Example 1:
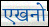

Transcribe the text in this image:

एखनो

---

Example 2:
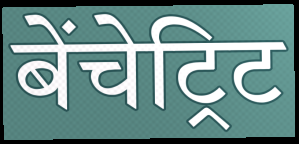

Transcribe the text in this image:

बेंचेट्रिट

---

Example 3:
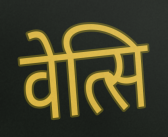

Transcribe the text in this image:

वेत्सि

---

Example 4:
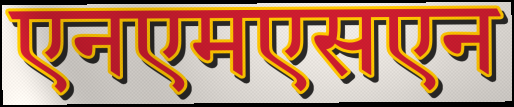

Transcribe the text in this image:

एनएमएसएन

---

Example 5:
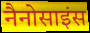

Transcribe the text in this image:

नैनोसाइंस